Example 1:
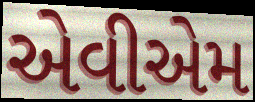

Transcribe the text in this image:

એવીએમ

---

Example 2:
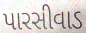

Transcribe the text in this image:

પારસીવાડ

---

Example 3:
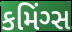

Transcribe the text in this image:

કમિંગ્સ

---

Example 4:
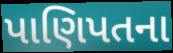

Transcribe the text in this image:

પાણિપતના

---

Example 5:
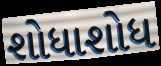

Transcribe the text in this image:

શોધાશોધ